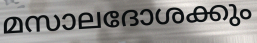
മസാലദോശക്കും